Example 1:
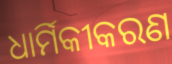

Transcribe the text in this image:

ଧାର୍ମିକୀକରଣ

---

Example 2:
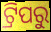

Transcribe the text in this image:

ଟ୍ରିପରୁ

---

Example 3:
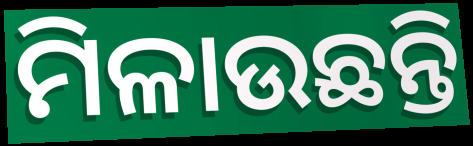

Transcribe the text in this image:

ମିଳାଉଛନ୍ତି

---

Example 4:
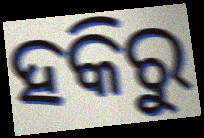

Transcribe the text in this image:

ହକିରୁ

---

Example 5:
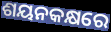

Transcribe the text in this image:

ଶୟନକକ୍ଷରେ